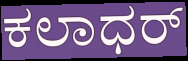
ಕಲಾಧರ್